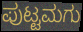
ಪುಟ್ಟಮಗು